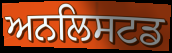
ਅਨਲਿਸਟਡ